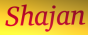
Shajan